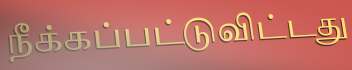
நீக்கப்பட்டுவிட்டது